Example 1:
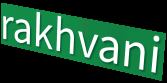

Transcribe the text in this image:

rakhvani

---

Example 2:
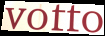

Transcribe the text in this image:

votto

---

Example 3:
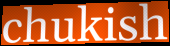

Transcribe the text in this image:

chukish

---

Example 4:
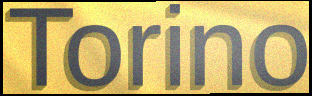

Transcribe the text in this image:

Torino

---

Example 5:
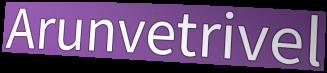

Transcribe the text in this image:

Arunvetrivel